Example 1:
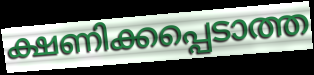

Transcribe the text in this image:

ക്ഷണിക്കപ്പെടാത്ത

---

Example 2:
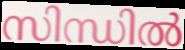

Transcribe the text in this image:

സിന്ധിൽ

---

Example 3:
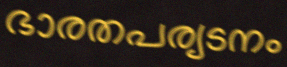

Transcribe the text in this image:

ഭാരതപര്യടനം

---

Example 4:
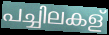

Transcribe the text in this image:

പച്ചിലകള്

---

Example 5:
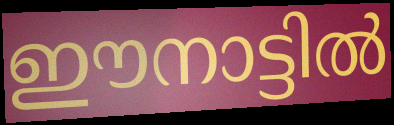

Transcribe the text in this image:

ഈനാട്ടിൽ